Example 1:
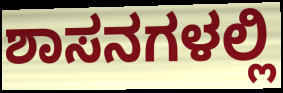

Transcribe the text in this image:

ಶಾಸನಗಳಲ್ಲಿ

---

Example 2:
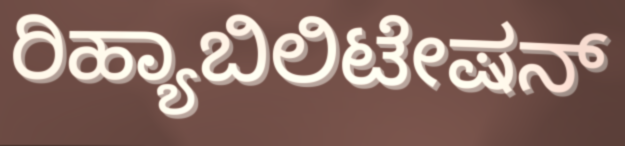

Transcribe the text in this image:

ರಿಹ್ಯಾಬಿಲಿಟೇಷನ್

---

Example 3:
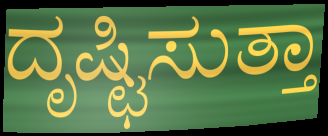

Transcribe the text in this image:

ದೃಷ್ಟಿಸುತ್ತಾ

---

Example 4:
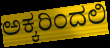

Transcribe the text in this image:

ಅಕ್ಕರಿಂದಲಿ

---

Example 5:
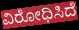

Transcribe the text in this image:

ವಿರೋಧಿಸಿದೆ